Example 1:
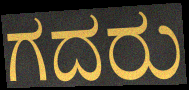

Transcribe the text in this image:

ಗದರು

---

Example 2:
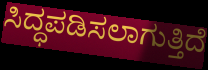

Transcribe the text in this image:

ಸಿದ್ಧಪಡಿಸಲಾಗುತ್ತಿದೆ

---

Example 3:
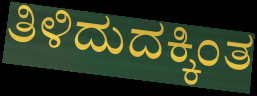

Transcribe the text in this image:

ತಿಳಿದುದಕ್ಕಿಂತ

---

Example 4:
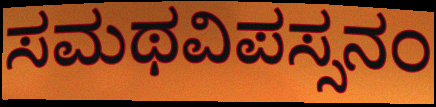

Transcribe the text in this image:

ಸಮಥವಿಪಸ್ಸನಂ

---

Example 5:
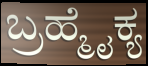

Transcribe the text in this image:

ಬ್ರಹ್ಮೈಕ್ಯ